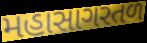
મહાસાગરતળ